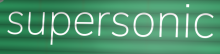
supersonic